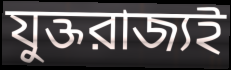
যুক্তরাজ্যই